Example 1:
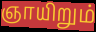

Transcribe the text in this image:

ஞாயிறும்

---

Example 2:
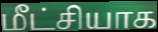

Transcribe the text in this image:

மீட்சியாக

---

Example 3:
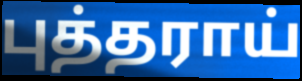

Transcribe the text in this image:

புத்தராய்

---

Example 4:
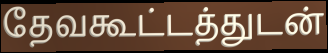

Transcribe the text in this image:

தேவகூட்டத்துடன்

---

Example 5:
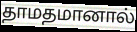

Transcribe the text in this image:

தாமதமானால்